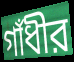
গাঁধীর